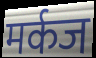
मर्कज